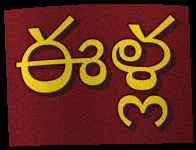
ఈళ్ల